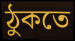
ঠুকতে